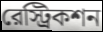
রেস্ট্রিকশন